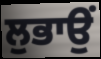
ਲੁਭਾਉਂ